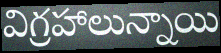
విగ్రహాలున్నాయి